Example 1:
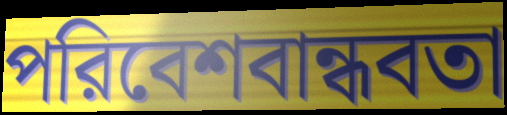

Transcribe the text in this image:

পরিবেশবান্ধবতা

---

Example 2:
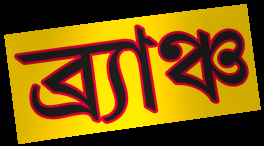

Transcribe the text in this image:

ব্র্যাঞ্চ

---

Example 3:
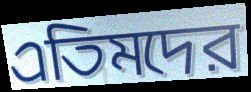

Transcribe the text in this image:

এতিমদের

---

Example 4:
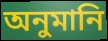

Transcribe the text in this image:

অনুমানি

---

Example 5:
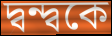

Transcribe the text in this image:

দ্বন্দ্বকে